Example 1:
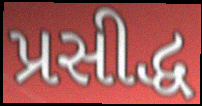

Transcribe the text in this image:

પ્રસીદ્ધ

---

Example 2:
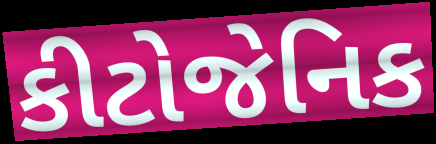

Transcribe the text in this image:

કીટોજેનિક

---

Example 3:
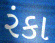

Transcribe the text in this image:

રંકા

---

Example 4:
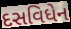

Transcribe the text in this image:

દસવિધેન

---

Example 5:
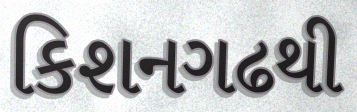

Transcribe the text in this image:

કિશનગઢથી